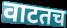
वाटतच